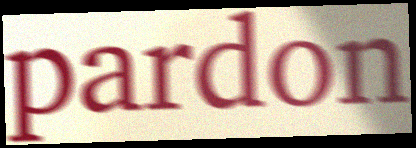
pardon